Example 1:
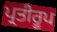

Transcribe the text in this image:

ਪ੍ਰਤੀਰੂਪ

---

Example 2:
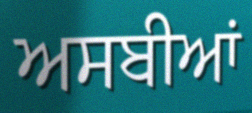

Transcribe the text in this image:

ਅਸਬੀਆਂ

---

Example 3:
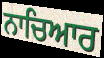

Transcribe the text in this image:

ਨਾਚਿਆਰ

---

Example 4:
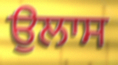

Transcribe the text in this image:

ਉਲਾਸ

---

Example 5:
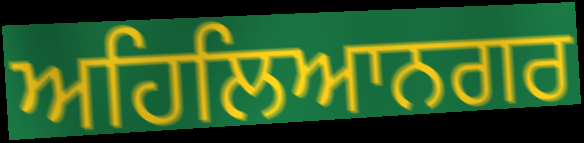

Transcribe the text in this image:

ਅਹਿਲਿਆਨਗਰ